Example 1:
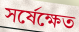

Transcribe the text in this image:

সর্ষেক্ষেত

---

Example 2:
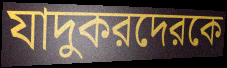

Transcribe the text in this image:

যাদুকরদেরকে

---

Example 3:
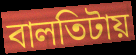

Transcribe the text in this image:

বালতিটায়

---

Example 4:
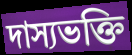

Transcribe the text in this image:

দাস্যভক্তি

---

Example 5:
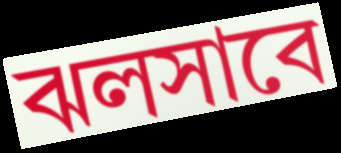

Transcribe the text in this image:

ঝলসাবে